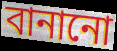
বানানো